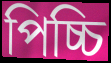
পিচ্চি